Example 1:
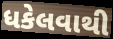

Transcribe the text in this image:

ધકેલવાથી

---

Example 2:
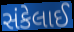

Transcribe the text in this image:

સંકેલાઈ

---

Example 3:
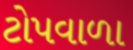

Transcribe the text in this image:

ટોપવાળા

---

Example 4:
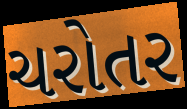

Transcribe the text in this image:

ચરોતર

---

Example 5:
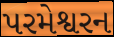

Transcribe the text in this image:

પરમેશ્વરન